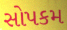
સોપકમ